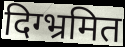
दिग्भ्रमित